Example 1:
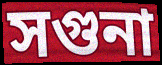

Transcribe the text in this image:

সগুনা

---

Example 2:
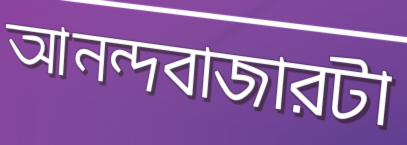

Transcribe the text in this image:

আনন্দবাজারটা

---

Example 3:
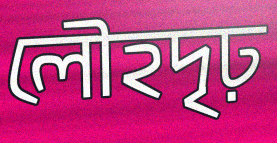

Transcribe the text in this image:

লৌহদৃঢ়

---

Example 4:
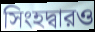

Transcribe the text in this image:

সিংহদ্বারও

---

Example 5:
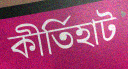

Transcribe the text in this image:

কীর্তিহাট